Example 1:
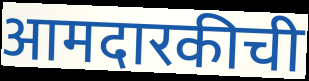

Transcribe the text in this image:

आमदारकीची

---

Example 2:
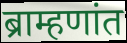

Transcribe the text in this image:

ब्राम्हणांत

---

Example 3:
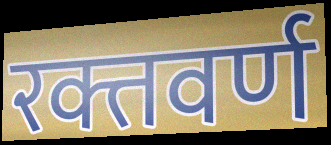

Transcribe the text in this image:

रक्तवर्ण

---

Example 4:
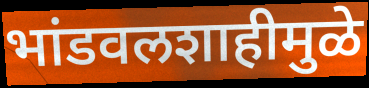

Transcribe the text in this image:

भांडवलशाहीमुळे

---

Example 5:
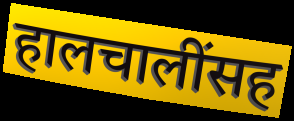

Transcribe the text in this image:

हालचालींसह